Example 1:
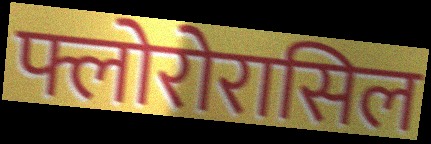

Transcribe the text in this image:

फ्लोरोरासिल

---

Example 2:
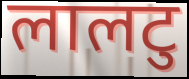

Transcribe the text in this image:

लालटु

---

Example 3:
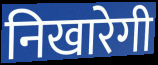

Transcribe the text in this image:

निखारेगी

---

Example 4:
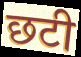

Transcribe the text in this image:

छटी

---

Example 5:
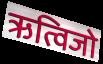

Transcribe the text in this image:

ऋत्विजो